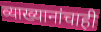
व्याख्यानांचाही